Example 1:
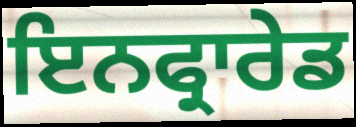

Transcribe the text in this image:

ਇਨਫ੍ਰਾਰੇਡ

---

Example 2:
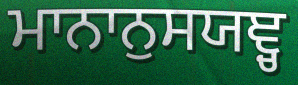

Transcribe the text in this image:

ਮਾਨਾਨੁਸਯਞ੍ਚ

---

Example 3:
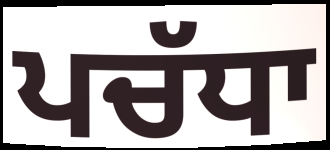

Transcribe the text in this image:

ਪਚੱਧਾ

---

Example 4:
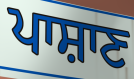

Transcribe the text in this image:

ਪਾਸ਼ਾਣ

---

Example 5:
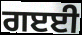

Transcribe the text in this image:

ਗੲਈ